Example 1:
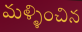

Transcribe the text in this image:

మళ్ళించిన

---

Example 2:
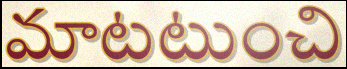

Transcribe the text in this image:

మాటటుంచి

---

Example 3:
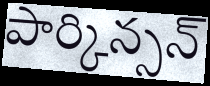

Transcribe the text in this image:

పార్కిన్సన్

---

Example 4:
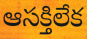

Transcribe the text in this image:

ఆసక్తిలేక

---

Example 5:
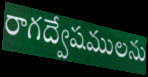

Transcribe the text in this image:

రాగద్వేషములను